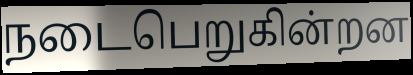
நடைபெறுகின்றன